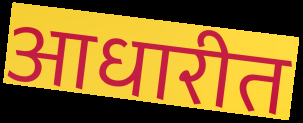
आधारीत